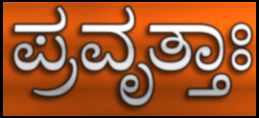
ಪ್ರವೃತ್ತಾಃ